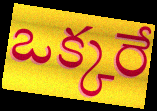
ఒక్కరే